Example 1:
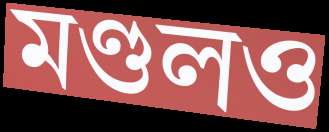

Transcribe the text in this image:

মণ্ডলও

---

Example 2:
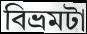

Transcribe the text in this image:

বিভ্রমটা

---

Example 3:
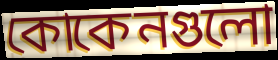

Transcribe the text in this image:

কোকেনগুলো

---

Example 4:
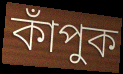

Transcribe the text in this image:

কাঁপুক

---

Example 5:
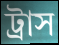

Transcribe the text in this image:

ট্রাস